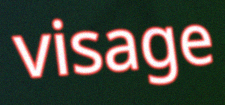
visage